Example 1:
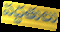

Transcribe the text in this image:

పద్ధతులు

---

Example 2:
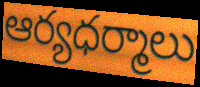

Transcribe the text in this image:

ఆర్యధర్మాలు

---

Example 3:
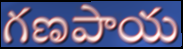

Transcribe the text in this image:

గణపాయ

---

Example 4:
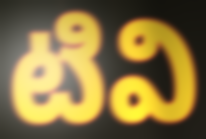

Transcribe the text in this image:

టివి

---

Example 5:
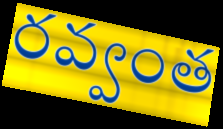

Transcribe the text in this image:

రవ్వంత